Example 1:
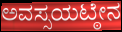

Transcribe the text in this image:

ಅವಸ್ಸಯಟ್ಠೇನ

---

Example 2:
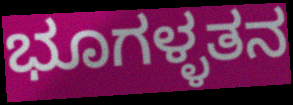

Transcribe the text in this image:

ಭೂಗಳ್ಳತನ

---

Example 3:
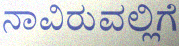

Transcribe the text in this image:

ನಾವಿರುವಲ್ಲಿಗೆ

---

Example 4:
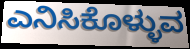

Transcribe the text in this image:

ಎನಿಸಿಕೊಳ್ಳುವ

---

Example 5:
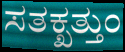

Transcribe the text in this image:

ಸತಕ್ಖತ್ತುಂ